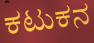
ಕಟುಕನ